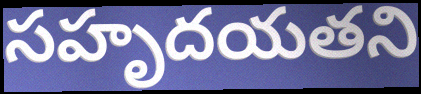
సహృదయతని